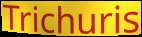
Trichuris